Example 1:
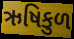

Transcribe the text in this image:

ઋષિકુળ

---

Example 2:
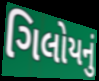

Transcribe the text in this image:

ગિલોયનું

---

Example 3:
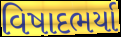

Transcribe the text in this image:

વિષાદભર્યા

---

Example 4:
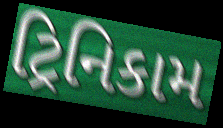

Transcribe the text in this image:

ટ્રિનિકામ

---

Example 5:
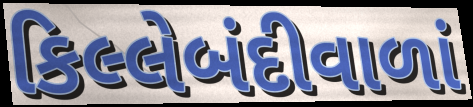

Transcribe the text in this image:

કિલ્લેબંદીવાળાં